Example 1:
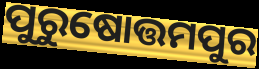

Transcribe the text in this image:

ପୁରୁଷୋତ୍ତମପୁର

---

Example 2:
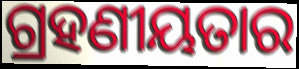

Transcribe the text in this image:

ଗ୍ରହଣୀୟତାର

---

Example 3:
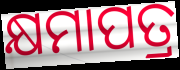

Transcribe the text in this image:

କ୍ଷମାପତ୍ର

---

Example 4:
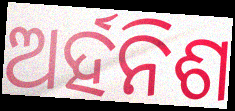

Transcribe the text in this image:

ଅର୍ହନିଶ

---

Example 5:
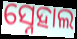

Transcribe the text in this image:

ସ୍ନେହାଲ